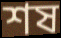
শষ